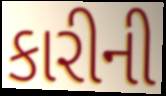
કારીની